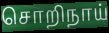
சொறிநாய்